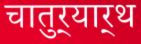
चातुर्यार्थ